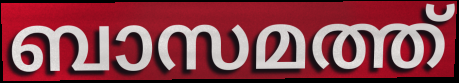
ബാസമത്ത്